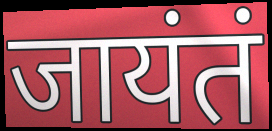
जायंतं